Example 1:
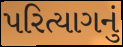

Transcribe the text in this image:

પરિત્યાગનું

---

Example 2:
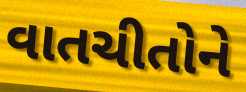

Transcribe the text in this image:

વાતચીતોને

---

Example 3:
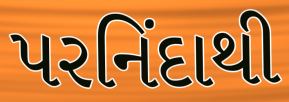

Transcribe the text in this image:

પરનિંદાથી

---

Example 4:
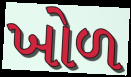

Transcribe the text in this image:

ખોળ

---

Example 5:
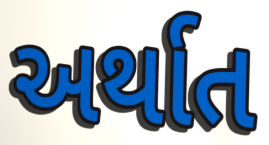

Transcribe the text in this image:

અર્થાત